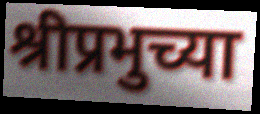
श्रीप्रभुच्या